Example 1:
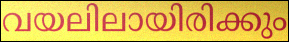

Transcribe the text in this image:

വയലിലായിരിക്കും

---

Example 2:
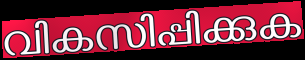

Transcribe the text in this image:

വികസിപ്പിക്കുക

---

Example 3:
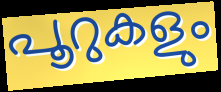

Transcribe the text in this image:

പൂറുകളും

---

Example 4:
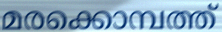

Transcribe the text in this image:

മരക്കൊമ്പത്ത്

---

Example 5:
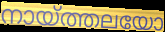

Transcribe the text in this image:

നായ്ത്തലയോ